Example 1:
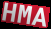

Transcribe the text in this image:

HMA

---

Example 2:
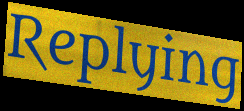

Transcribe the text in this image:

Replying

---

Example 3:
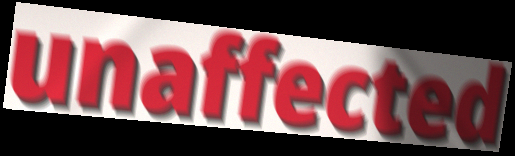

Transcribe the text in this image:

unaffected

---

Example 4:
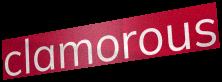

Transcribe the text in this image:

clamorous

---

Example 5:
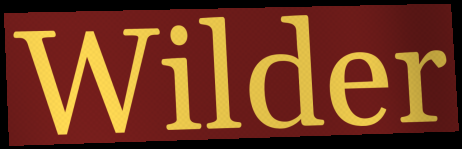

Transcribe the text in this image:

Wilder